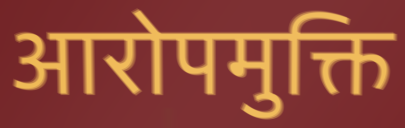
आरोपमुक्ति